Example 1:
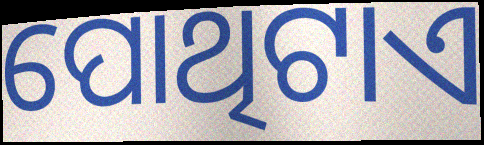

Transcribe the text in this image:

ପୋଥିଟାଏ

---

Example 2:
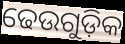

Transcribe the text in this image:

ଢେଉଗୁଡ଼ିକ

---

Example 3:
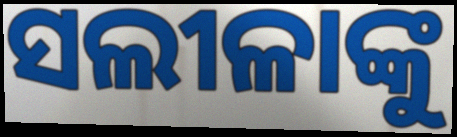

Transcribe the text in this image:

ସଲୀଳାଙ୍କୁ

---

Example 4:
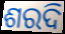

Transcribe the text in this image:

ଶରଦି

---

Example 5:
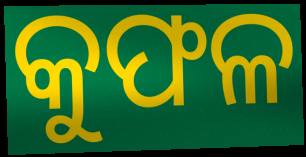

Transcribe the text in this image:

କୁଫଳ